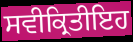
ਸਵੀਕ੍ਰਿਤੀਇਹ